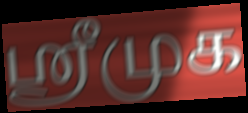
ஸ்ரீமுக